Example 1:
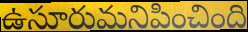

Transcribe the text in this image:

ఉసూరుమనిపించింది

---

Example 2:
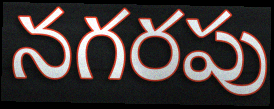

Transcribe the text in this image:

నగరపు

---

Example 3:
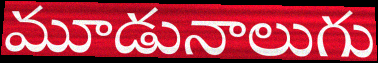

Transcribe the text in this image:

మూడునాలుగు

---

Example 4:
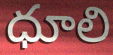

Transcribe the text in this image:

ధూలి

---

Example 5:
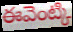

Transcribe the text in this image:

ఈవెంట్కి